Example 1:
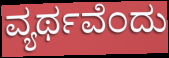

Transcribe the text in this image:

ವ್ಯರ್ಥವೆಂದು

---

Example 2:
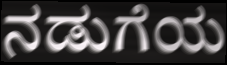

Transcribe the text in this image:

ನಡುಗೆಯ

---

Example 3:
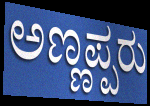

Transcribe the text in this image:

ಅಣ್ಣಪ್ಪರು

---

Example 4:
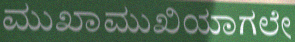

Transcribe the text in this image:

ಮುಖಾಮುಖಿಯಾಗಲೇ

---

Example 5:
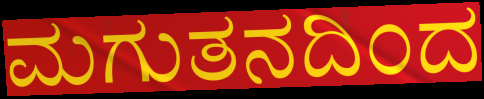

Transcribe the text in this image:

ಮಗುತನದಿಂದ